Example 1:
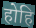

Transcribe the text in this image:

होहि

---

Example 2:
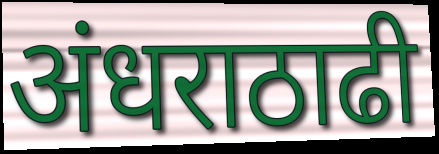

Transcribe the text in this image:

अंधराठाढी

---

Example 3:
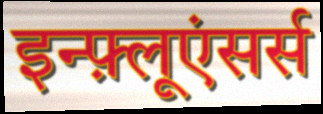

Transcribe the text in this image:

इन्फ़्लूएंसर्स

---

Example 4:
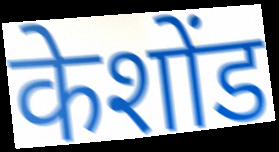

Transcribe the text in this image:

केशोंड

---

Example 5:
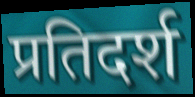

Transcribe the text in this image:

प्रतिदर्श